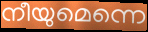
നീയുമെന്നെ